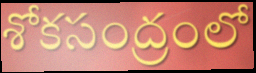
శోకసంద్రంలో